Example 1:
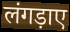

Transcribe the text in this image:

लंगड़ाए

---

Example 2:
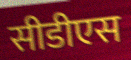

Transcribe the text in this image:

सीडीएस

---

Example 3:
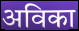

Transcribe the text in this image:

अविका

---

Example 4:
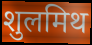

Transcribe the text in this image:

शुलमिथ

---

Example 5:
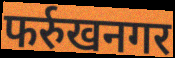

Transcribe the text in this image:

फर्रुखनगर